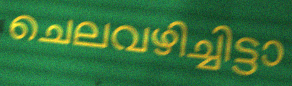
ചെലവഴിച്ചിട്ടാ